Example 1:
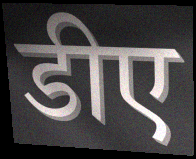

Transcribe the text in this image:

डीए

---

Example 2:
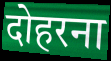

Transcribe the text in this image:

दोहरना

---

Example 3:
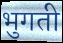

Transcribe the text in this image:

भुगती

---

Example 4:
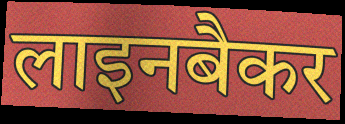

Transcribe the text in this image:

लाइनबैकर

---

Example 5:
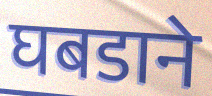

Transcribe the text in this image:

घबडाने